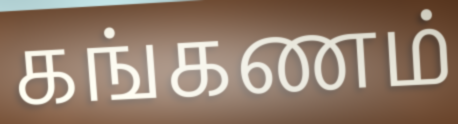
கங்கணம்